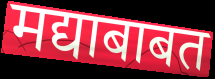
मद्याबाबत